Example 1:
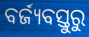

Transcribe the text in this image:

ବର୍ଜ୍ୟବସ୍ତୁରୁ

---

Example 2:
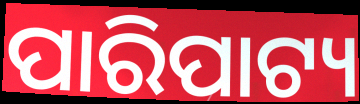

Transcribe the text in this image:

ପାରିପାଟ୍ୟ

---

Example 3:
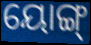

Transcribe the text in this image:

ୟୋଙ୍ଗ୍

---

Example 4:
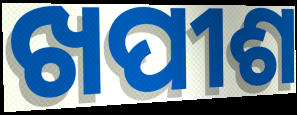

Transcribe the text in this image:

ଖପୀଶ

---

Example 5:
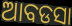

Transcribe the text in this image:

ଆବଡସା